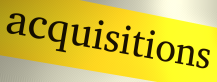
acquisitions